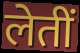
लेतीं